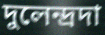
দুলেন্দ্রদা